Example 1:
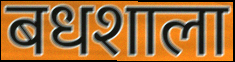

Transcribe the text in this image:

बधशाला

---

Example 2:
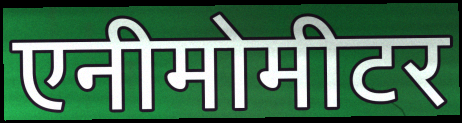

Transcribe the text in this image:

एनीमोमीटर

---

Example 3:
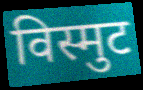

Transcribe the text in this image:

विस्मुट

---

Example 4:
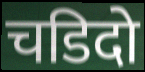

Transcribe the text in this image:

चडिदो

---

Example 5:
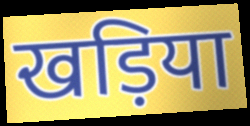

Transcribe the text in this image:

खड़िया